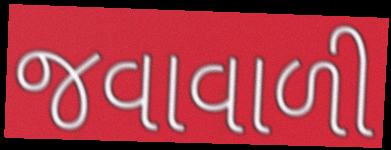
જવાવાળી